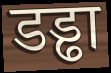
डड्ढा